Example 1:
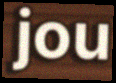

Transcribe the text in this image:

jou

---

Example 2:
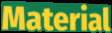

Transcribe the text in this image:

Material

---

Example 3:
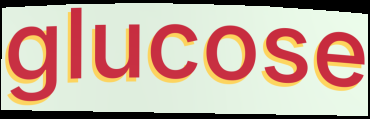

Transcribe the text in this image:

glucose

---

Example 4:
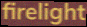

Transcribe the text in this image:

firelight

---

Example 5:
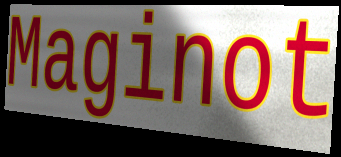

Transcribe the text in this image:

Maginot